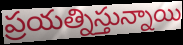
ప్రయత్నిస్తున్నాయి